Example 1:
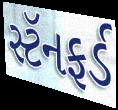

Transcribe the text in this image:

સ્ટૅનફર્ડ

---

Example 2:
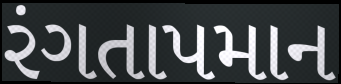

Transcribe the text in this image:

રંગતાપમાન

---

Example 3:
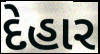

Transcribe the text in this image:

દેહાર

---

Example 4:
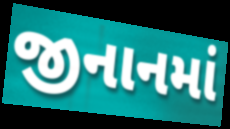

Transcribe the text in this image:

જીનાનમાં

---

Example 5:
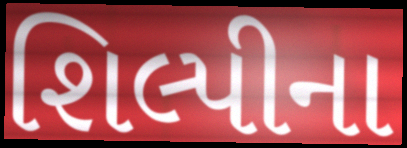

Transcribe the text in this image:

શિલ્પીના